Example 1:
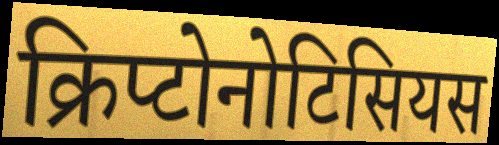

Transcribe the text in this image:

क्रिप्टोनोटिसियस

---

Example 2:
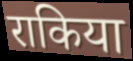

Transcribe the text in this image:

राकिया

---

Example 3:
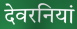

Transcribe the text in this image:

देवरनियां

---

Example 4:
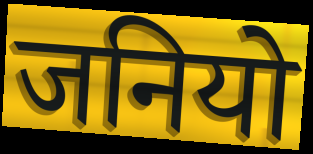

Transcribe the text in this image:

जनियो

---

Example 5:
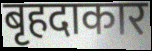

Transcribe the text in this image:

बृहदाकार